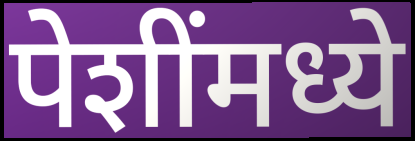
पेशींमध्ये